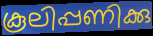
കൂലിപ്പണിക്കു